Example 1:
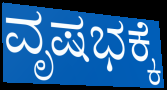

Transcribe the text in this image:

ವೃಷಭಕ್ಕೆ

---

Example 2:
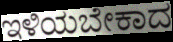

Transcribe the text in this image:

ಇಳಿಯಬೇಕಾದ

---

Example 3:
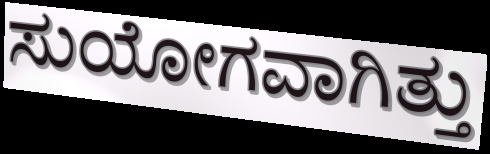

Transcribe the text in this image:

ಸುಯೋಗವಾಗಿತ್ತು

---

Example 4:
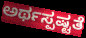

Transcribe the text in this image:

ಅರ್ಥಸ್ಪಷ್ಟತೆ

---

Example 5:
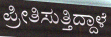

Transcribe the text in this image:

ಪ್ರೀತಿಸುತ್ತಿದ್ದಾಳೆ